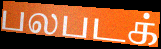
பலபடக்